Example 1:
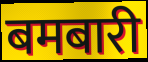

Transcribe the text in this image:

बमबारी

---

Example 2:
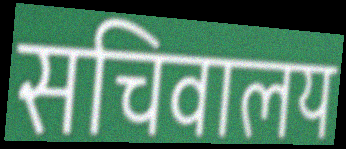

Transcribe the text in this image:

सचिवालय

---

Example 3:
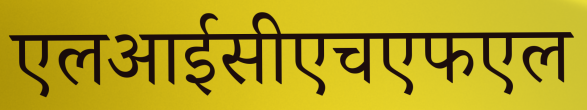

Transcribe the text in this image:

एलआईसीएचएफएल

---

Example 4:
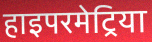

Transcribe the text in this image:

हाइपरमेट्रिया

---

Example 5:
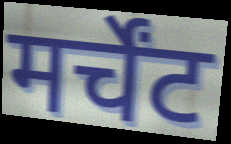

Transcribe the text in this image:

मर्चेंट